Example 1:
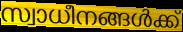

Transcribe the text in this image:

സ്വാധീനങ്ങൾക്ക്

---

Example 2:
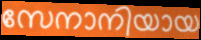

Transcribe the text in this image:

സേനാനിയായ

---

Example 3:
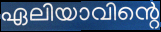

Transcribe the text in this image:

ഏലിയാവിന്റെ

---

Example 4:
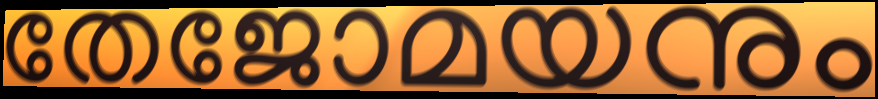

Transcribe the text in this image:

തേജോമയനും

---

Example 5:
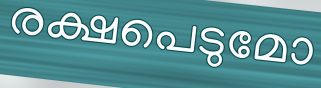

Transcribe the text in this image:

രക്ഷപെടുമോ